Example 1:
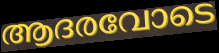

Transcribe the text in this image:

ആദരവോടെ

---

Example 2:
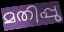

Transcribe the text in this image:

മതിപ്പു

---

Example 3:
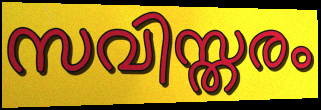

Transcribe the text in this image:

സവിസ്തരം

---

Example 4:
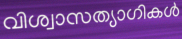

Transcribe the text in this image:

വിശ്വാസത്യാഗികൾ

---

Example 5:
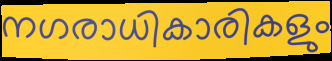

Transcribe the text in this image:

നഗരാധികാരികളും